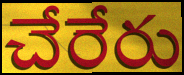
చేరేరు